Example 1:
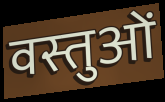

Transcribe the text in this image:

वस्‍तुओं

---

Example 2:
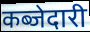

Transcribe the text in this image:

कब्जेदारी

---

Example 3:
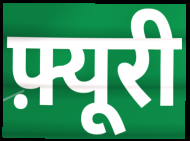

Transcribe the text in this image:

फ़्यूरी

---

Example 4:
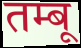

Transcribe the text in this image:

तम्‍बू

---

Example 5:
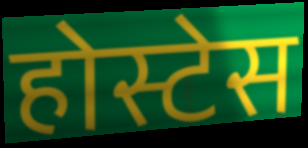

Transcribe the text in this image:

होस्टेस